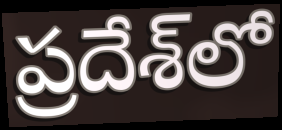
ప్రదేశ్‌లో